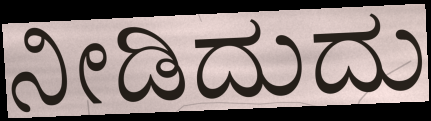
ನೀಡಿದುದು